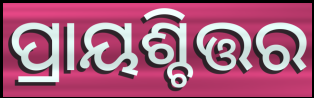
ପ୍ରାୟଶ୍ଚିତ୍ତର